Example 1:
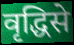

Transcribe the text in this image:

वृद्धिसे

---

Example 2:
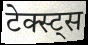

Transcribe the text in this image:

टेक्स्ट्स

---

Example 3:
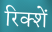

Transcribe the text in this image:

रिक्शें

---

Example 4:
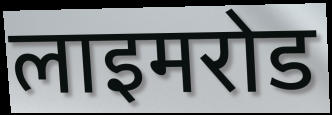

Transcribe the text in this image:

लाइमरोड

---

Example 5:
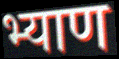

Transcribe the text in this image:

भ्याण